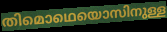
തിമൊഥെയൊസിനുള്ള